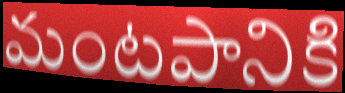
మంటపానికి